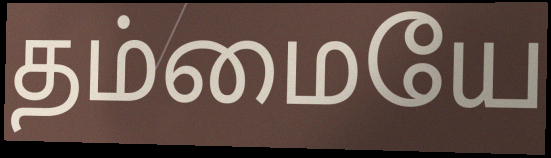
தம்மையே